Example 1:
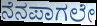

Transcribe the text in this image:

ನೆನಪಾಗಲೇ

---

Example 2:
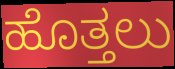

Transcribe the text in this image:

ಹೊತ್ತಲು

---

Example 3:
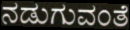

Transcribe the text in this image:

ನಡುಗುವಂತೆ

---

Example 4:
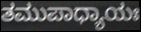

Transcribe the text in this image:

ತಮುಪಾಧ್ಯಾಯಃ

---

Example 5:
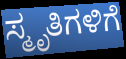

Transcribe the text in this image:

ಸ್ಮೃತಿಗಳಿಗೆ